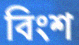
বিংশ